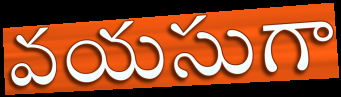
వయసుగా